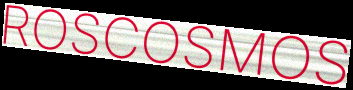
ROSCOSMOS